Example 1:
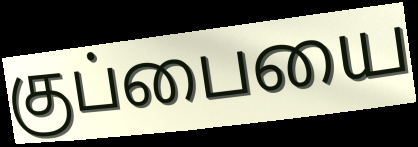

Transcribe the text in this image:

குப்பையை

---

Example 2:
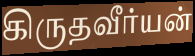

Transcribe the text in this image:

கிருதவீர்யன்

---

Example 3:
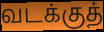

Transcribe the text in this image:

வடக்குத்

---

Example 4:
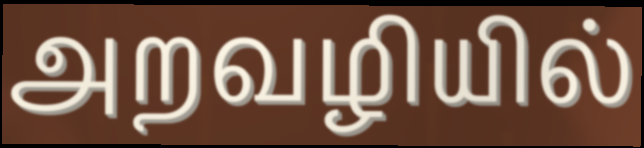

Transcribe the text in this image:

அறவழியில்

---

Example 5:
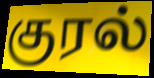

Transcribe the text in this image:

குரல்